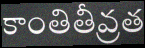
కాంతితీవ్రత